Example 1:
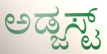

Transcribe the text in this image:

ಅಡ್ಜಸ್ಟ್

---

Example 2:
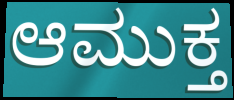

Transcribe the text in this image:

ಆಮುಕ್ತ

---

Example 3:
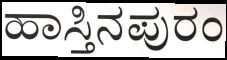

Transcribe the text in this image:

ಹಾಸ್ತಿನಪುರಂ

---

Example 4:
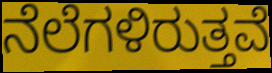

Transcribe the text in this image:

ನೆಲೆಗಳಿರುತ್ತವೆ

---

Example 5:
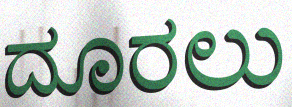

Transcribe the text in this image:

ದೂರಲು